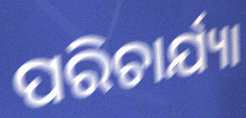
ପରିଚାର୍ଯ୍ୟା